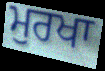
ਮੁਰਖਾ